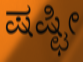
ಷಷ್ಟೀ